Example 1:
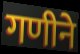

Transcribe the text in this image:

गणीने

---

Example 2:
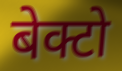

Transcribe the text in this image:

बेक्टो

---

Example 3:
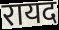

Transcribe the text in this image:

रायद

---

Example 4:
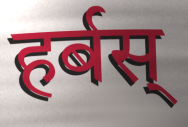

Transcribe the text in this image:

हर्बस्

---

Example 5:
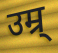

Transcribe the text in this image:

उम्र्